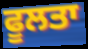
ਫੂਲਤਾ